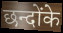
छन्दोंके